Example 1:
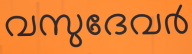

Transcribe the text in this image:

വസുദേവർ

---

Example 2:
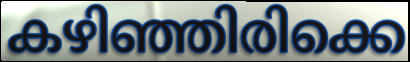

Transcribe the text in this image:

കഴിഞ്ഞിരിക്കെ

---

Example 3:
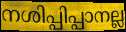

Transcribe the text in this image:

നശിപ്പിപ്പാനല്ല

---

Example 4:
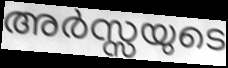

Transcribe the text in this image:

അർസ്സയുടെ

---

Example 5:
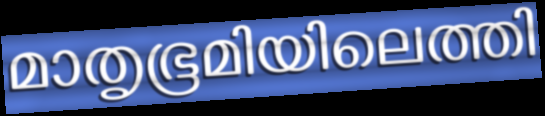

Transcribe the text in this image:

മാതൃഭൂമിയിലെത്തി